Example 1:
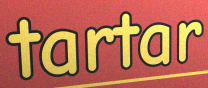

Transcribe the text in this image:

tartar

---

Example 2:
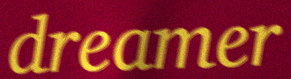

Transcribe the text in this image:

dreamer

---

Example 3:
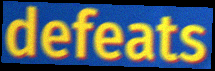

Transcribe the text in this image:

defeats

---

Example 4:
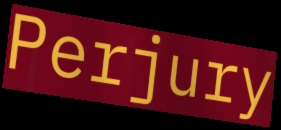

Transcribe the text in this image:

Perjury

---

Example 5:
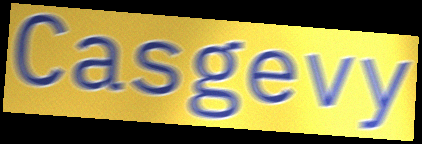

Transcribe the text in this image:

Casgevy